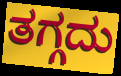
ತಗ್ಗದು